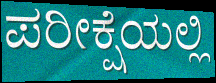
ಪರೀಕ್ಷೆಯಲ್ಲಿ